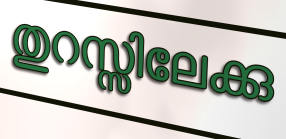
തുറസ്സിലേക്കു